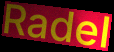
Radel